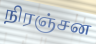
நிரஞ்சன